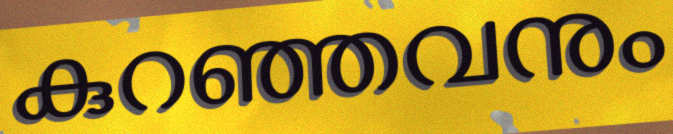
കുറഞ്ഞവനും